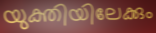
യുക്തിയിലേക്കും